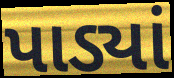
પાડ્યાં